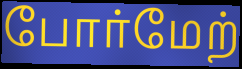
போர்மேற்